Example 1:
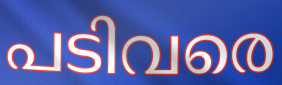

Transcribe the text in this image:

പടിവരെ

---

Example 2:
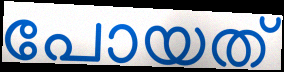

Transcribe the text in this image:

പോയത്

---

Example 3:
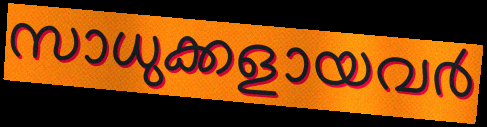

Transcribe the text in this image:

സാധുക്കളായവർ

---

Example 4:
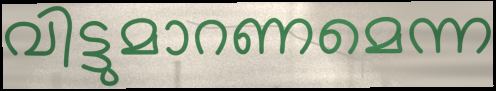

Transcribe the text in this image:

വിട്ടുമാറണമെന്ന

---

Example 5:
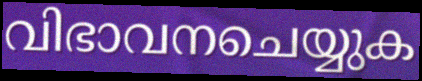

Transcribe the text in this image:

വിഭാവനചെയ്യുക